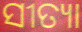
ସୀତ୍ୟା